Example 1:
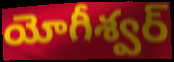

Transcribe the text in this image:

యోగీశ్వర్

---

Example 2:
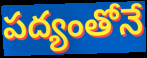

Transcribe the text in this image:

పద్యంతోనే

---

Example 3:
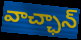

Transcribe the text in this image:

వాచ్ఛాన్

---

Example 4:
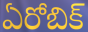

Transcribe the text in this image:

ఏరోబిక్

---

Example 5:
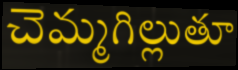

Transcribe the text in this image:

చెమ్మగిల్లుతూ